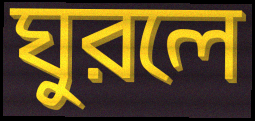
ঘুরলে